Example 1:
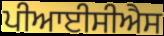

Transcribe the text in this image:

ਪੀਆਈਸੀਐਸ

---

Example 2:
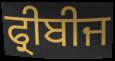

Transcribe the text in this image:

ਫ੍ਰੀਬੀਜ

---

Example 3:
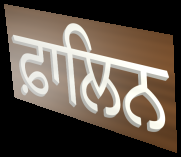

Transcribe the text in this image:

ਫ਼ਾਲਿਨ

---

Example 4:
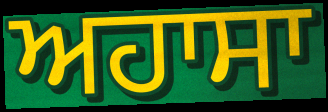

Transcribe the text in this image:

ਅਹਾਸਾ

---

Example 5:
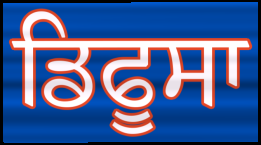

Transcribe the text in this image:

ਡਿਫੂਸਾ